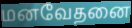
மனவேதனை